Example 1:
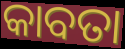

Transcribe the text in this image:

କାବତା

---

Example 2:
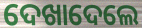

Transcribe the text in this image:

ଦେଖାଦେଲେ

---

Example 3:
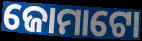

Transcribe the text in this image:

ଜୋମାଟୋ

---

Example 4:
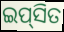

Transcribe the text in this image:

ଇପ୍‌ସିତ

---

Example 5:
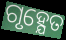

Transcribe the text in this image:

ଗୃହ୍ଯେତ